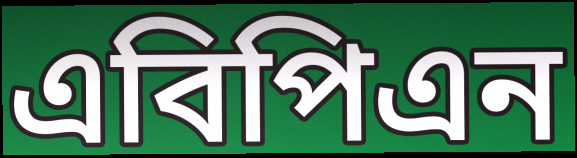
এবিপিএন